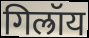
गिल्रॉय